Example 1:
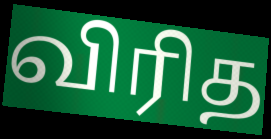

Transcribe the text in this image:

விரித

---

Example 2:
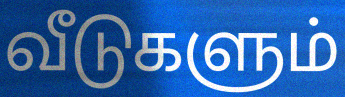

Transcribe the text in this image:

வீடுகளும்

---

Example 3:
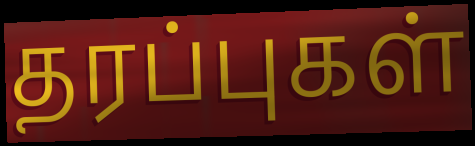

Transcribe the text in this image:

தரப்புகள்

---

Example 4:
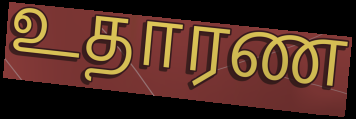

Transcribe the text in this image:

உதாரண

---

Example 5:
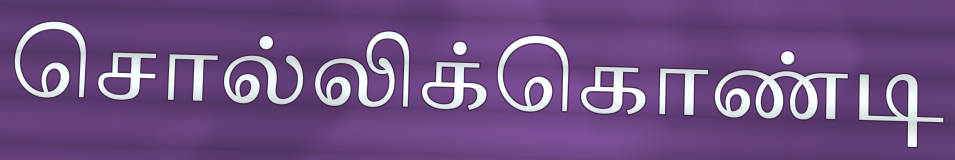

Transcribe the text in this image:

சொல்லிக்கொண்டி